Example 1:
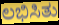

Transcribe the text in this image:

ಲಭಿಸಿತು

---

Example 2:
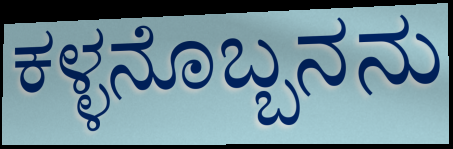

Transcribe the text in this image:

ಕಳ್ಳನೊಬ್ಬನನು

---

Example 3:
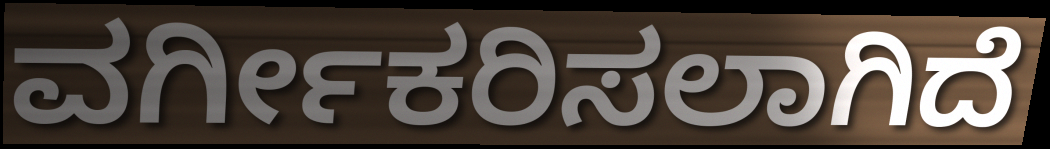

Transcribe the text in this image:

ವರ್ಗೀಕರಿಸಲಾಗಿದೆ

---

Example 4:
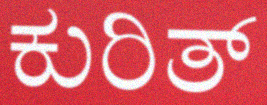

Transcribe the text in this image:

ಕುರಿತ್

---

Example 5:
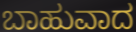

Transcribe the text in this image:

ಬಾಹುವಾದ